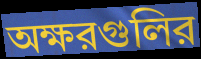
অক্ষরগুলির